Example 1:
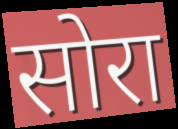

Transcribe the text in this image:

सोरा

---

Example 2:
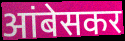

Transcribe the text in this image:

आंबेसकर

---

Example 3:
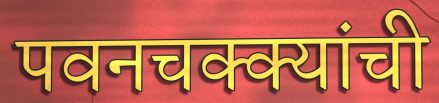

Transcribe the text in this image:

पवनचक्क्यांची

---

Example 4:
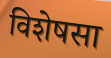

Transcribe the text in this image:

विशेषसा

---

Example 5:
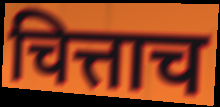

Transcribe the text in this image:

चित्ताच